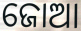
ଜୋଆ